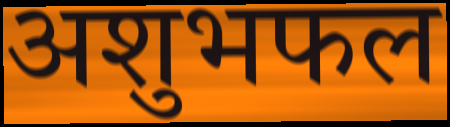
अशुभफल